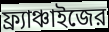
ফ্র্যাঞ্চাইজের